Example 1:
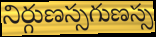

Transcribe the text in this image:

నిర్గుణస్సగుణస్స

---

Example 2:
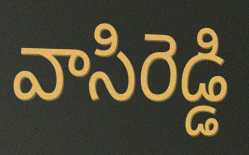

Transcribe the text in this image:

వాసిరెడ్డి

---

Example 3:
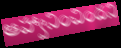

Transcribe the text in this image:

ఆహ్వానించిందని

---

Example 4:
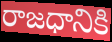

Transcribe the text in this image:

రాజధానికి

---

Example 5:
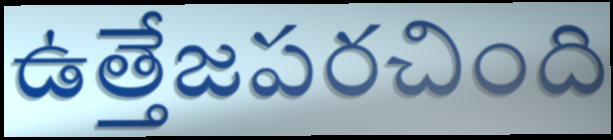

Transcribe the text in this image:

ఉత్తేజపరచింది